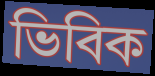
ভিবিক